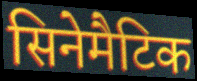
सिनेमैटिक